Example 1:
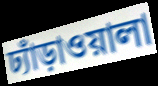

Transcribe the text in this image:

ঢ্যাঁড়াওয়ালা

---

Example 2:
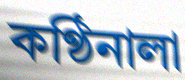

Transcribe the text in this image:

কণ্ঠিনালা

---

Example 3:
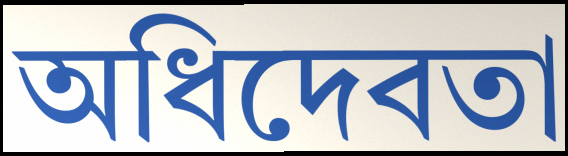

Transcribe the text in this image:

অধিদেবতা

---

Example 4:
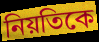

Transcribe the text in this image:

নিয়তিকে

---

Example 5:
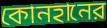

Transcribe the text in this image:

কোনহানের